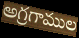
అగ్రగాముల